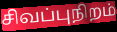
சிவப்புநிறம்